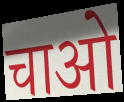
चाओ